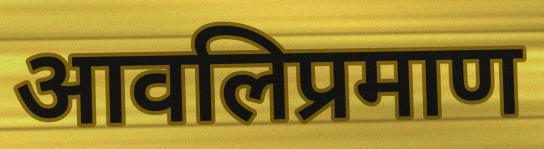
आवलिप्रमाण